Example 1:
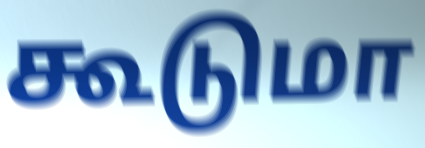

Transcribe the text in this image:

கூடுமா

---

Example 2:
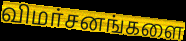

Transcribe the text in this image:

விமர்சனங்களை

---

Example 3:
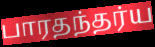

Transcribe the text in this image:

பாரதந்தர்ய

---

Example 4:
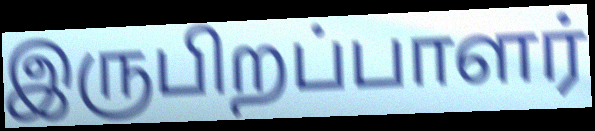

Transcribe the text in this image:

இருபிறப்பாளர்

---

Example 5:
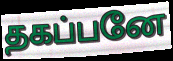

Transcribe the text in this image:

தகப்பனே